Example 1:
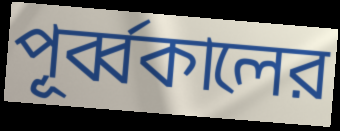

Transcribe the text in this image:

পূর্ব্বকালের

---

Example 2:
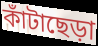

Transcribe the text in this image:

কাঁটাছেড়া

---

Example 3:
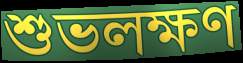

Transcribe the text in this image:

শুভলক্ষণ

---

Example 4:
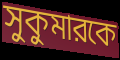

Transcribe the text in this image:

সুকুমারকে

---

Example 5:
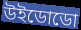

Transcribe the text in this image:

উইডোডো